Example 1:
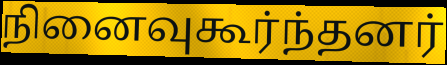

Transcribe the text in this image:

நினைவுகூர்ந்தனர்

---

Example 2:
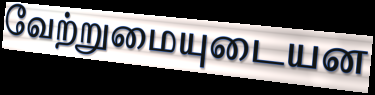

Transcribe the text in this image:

வேற்றுமையுடையன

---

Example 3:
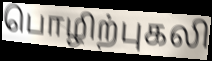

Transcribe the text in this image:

பொழிற்புகலி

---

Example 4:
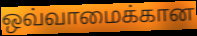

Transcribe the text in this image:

ஒவ்வாமைக்கான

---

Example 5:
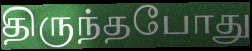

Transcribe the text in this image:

திருந்தபோது